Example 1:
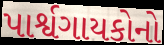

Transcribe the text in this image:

પાર્શ્વગાયકોનો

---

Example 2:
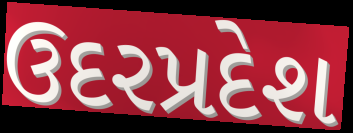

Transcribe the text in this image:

ઉદરપ્રદેશ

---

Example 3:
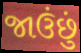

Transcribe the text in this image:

જાઉંછું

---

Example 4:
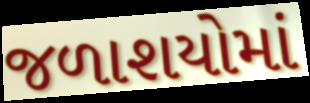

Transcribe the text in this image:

જળાશયોમાં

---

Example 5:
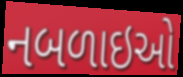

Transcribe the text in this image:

નબળાઇઓ